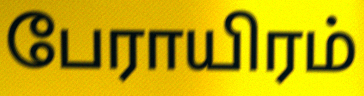
பேராயிரம்